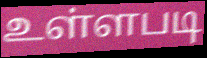
உள்ளபடி